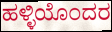
ಹಳ್ಳಿಯೊಂದರ